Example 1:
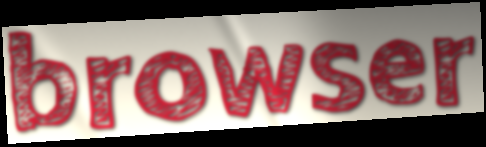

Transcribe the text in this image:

browser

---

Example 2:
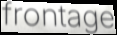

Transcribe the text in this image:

frontage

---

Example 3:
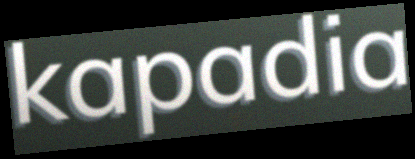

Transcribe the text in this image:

kapadia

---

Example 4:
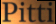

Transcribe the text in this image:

Pitti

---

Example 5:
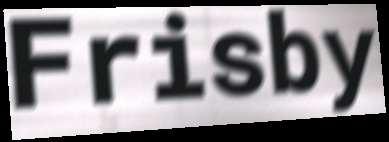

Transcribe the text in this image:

Frisby